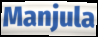
Manjula